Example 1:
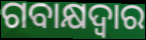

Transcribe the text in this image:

ଗବାକ୍ଷଦ୍ୱାର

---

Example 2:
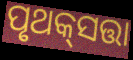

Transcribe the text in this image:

ପୃଥକ୍‌ସତ୍ତା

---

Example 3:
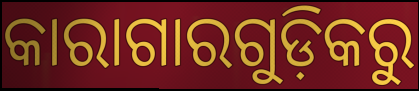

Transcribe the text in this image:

କାରାଗାରଗୁଡ଼ିକରୁ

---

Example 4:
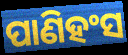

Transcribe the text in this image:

ପାଣିହଂସ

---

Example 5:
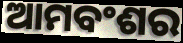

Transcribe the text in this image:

ଆମବଂଶର